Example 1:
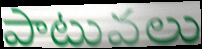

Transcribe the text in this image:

పాటువలు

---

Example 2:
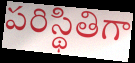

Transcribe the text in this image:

పరిస్థితిగా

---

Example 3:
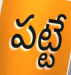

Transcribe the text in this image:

పట్టే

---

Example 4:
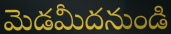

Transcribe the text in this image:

మెడమీదనుండి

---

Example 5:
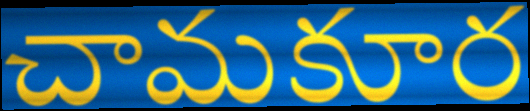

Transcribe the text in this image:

చామకూర